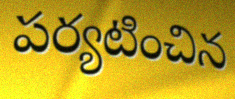
పర్యటించిన